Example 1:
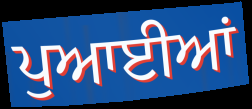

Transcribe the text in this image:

ਪੁਆਈਆਂ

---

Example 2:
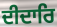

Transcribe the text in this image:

ਦੀਦਾਰਿ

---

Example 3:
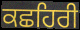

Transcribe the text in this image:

ਕਛਹਿਰੀ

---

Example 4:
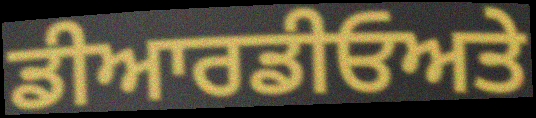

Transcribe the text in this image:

ਡੀਆਰਡੀਓਅਤੇ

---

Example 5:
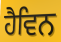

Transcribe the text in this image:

ਹੈਵਿਨ